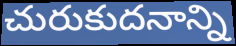
చురుకుదనాన్ని